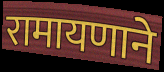
रामायणाने